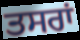
ਤਸਰਾਂ